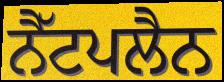
ਨੈੱਟਪਲੈਨ